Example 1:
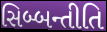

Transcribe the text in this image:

સિબ્બન્તીતિ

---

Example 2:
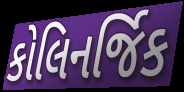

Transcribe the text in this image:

કોલિનર્જિક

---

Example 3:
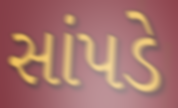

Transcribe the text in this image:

સાંપડે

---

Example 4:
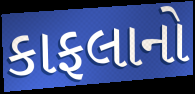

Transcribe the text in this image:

કાફલાનો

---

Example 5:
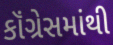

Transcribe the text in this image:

કૉંગ્રેસમાંથી